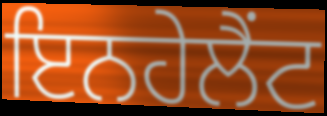
ਇਨਹੇਲੈਂਟ